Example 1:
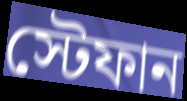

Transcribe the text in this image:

স্টেফান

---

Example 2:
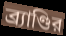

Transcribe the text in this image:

ব্র্যাণ্ডির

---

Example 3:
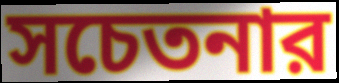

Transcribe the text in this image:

সচেতনার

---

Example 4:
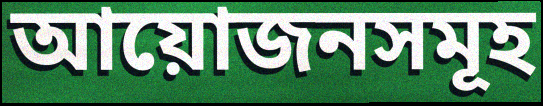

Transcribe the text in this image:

আয়োজনসমূহ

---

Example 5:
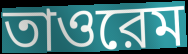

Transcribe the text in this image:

তাওরেম